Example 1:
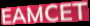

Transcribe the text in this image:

EAMCET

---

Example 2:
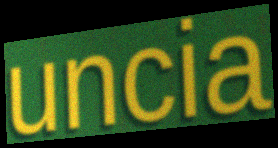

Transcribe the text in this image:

uncia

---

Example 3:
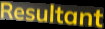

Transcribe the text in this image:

Resultant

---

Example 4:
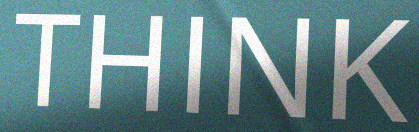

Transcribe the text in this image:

THINK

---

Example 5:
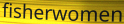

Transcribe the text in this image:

fisherwomen